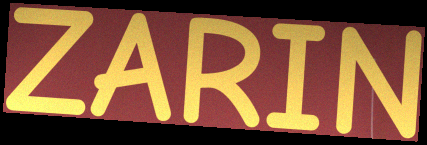
ZARIN